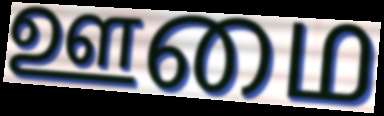
ஊமை